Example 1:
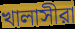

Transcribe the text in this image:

খালাসীরা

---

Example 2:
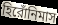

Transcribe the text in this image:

হিরোঁনিমাস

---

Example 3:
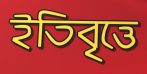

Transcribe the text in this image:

ইতিবৃত্তে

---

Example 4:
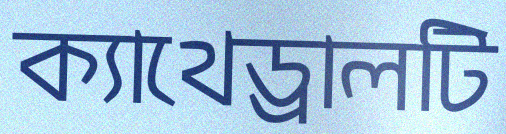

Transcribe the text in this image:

ক্যাথেড্রালটি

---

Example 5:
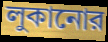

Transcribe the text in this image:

লুকানোর